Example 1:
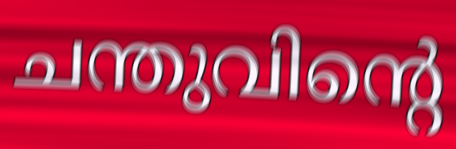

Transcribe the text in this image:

ചന്തുവിന്റെ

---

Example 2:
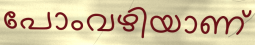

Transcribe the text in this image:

പോംവഴിയാണ്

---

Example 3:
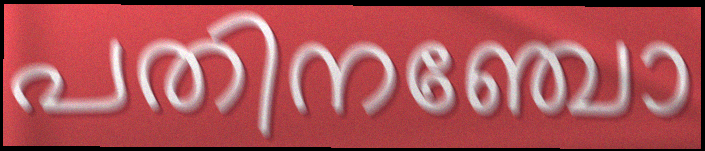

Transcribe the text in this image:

പതിനഞ്ചോ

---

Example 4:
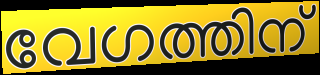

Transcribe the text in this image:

വേഗത്തിന്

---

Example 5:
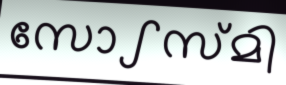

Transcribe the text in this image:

സോഽസ്മി